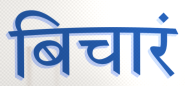
बिचारं